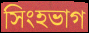
সিংহভাগ